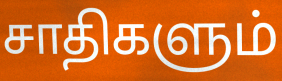
சாதிகளும்